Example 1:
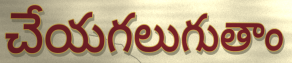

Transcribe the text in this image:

చేయగలుగుతాం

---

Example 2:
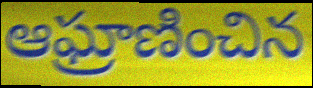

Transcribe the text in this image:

ఆఘ్రాణించిన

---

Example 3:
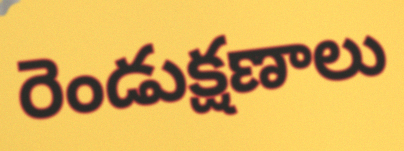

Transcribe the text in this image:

రెండుక్షణాలు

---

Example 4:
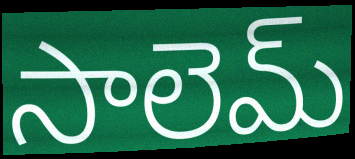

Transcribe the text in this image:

సాలెమ్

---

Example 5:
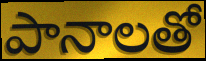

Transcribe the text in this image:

పానాలతో